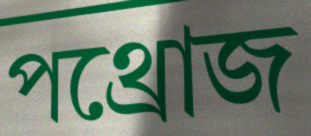
পথ্রোজ